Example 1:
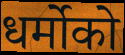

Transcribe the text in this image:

धर्मोको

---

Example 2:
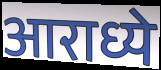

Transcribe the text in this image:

आराध्ये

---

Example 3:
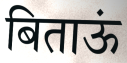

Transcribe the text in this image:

बिताऊं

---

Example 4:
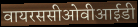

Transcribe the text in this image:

वायरससीओवीआईडी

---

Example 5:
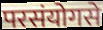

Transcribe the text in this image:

परसंयोगसे